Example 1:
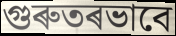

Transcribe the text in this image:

গুৰুতৰভাবে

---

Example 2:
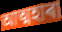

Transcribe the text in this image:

আত্মহাৰা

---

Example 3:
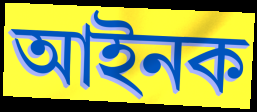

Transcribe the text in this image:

আইনক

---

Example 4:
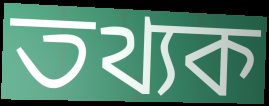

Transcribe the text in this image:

তথ্যক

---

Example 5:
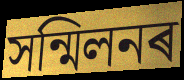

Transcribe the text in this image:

সন্মিলনৰ